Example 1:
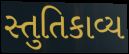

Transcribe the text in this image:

સ્તુતિકાવ્ય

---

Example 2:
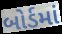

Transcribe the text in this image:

બોર્ડમાં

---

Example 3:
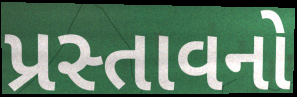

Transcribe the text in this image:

પ્રસ્તાવનો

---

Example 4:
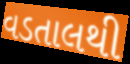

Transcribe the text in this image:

વડતાલથી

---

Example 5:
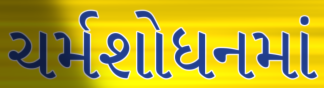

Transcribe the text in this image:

ચર્મશોધનમાં